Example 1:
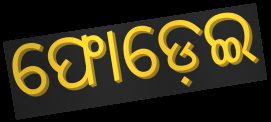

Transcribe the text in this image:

ଫୋଡ଼େଇ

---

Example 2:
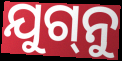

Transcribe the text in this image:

ଯୁଗ୍‌ନୁ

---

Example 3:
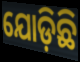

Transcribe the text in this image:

ଯୋଡ଼ିଛି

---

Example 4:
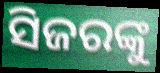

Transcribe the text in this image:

ସିଜରଙ୍କୁ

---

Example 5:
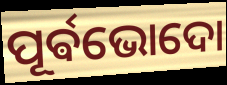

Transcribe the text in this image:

ପୂର୍ଵଭୋଦୋ